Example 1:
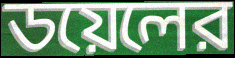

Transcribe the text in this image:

ডয়েলের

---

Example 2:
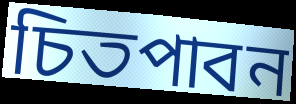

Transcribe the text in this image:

চিতপাবন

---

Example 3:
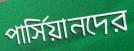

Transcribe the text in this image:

পার্সিয়ানদের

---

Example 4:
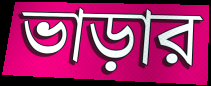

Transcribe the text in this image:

ভাড়ার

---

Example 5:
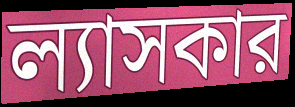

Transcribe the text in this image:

ল্যাসকার